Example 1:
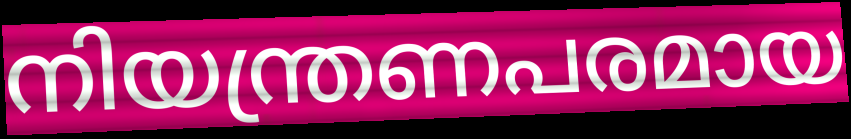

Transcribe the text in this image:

നിയന്ത്രണപരമായ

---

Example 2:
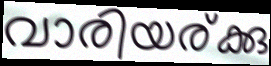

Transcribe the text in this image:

വാരിയര്ക്കു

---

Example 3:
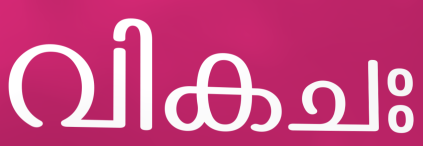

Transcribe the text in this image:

വികചഃ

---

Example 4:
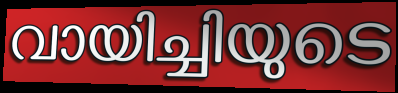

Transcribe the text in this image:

വായിച്ചിയുടെ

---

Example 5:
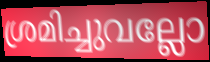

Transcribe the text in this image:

ശ്രമിച്ചുവല്ലോ